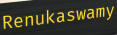
Renukaswamy